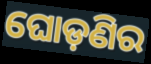
ଘୋଡ଼ଣିର